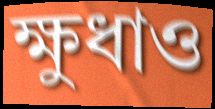
ক্ষুধাও